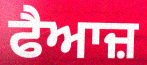
ਫੈਆਜ਼